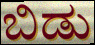
ಬಿಡು